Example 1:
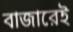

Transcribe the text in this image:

বাজারেই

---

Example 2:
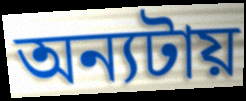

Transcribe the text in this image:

অন্যটায়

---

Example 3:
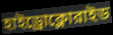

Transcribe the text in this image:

হাইড্রোক্লোরাইড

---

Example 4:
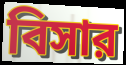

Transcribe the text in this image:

বিসার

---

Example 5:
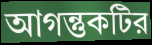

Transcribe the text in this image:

আগন্তুকটির